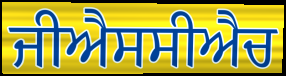
ਜੀਐਸਸੀਐਚ